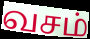
வசம்